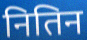
नितिन